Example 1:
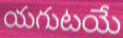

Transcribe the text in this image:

యగుటయే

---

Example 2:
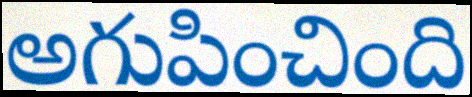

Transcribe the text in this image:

అగుపించింది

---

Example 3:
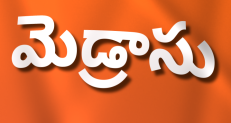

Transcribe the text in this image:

మెడ్రాసు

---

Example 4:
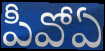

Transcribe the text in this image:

పీవోఏ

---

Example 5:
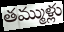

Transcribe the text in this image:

తమ్ముళ్లు